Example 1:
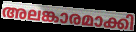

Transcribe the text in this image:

അലങ്കാരമാക്കി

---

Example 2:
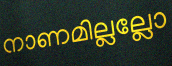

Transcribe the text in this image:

നാണമില്ലല്ലോ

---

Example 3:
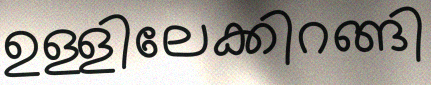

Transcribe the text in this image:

ഉള്ളിലേക്കിറങ്ങി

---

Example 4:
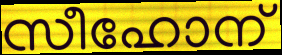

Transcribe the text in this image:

സീഹോന്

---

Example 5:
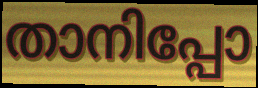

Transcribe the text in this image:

താനിപ്പോ